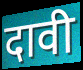
दावी